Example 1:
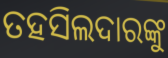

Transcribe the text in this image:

ତହସିଲଦାରଙ୍କୁ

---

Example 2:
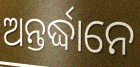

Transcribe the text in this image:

ଅନ୍ତର୍ଦ୍ଧାନେ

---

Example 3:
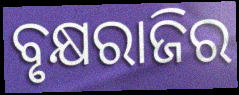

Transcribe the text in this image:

ବୃକ୍ଷରାଜିର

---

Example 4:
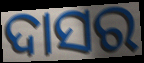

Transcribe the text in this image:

ଦାସର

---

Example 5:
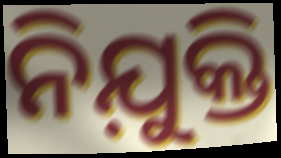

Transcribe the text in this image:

ନିଯ଼ୁକ୍ତି